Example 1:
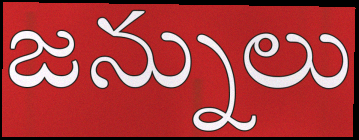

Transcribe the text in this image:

జన్నులు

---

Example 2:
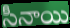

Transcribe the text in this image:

సీనాయి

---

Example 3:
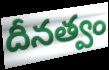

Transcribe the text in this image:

దీనత్వం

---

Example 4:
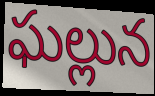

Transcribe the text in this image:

ఘల్లున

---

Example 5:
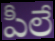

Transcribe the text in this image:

పీలే